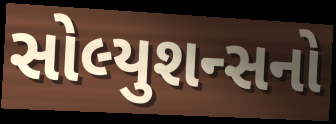
સોલ્યુશન્સનો